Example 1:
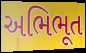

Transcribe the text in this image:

અભિભૂત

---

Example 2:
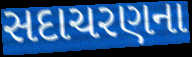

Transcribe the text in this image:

સદાચરણના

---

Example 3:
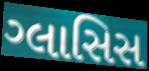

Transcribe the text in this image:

ગ્લાસિસ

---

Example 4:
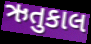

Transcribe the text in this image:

ઋતુકાલ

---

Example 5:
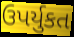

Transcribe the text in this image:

ઉપર્યુકત